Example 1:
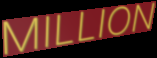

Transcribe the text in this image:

MILLION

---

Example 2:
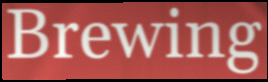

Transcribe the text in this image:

Brewing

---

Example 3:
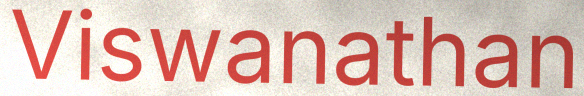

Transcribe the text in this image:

Viswanathan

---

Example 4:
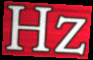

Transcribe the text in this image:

Hz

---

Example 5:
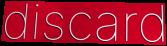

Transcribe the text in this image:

discard